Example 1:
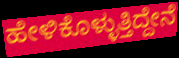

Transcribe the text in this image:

ಹೇಳಿಕೊಳ್ಳುತ್ತಿದ್ದೇನೆ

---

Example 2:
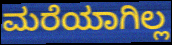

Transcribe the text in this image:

ಮರೆಯಾಗಿಲ್ಲ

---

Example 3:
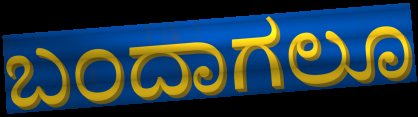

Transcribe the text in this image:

ಬಂದಾಗಲೂ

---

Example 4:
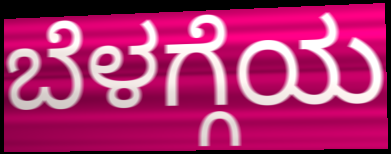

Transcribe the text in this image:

ಬೆಳಗ್ಗೆಯ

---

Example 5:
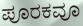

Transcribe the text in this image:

ಪೂರಕವೂ